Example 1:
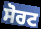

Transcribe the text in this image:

ਸੋਰਟ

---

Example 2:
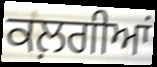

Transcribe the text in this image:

ਕਲ਼ਗੀਆਂ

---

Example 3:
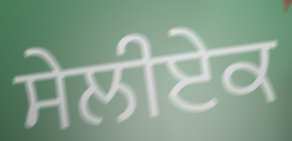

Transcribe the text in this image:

ਸੇਲੀਏਕ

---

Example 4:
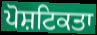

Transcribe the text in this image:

ਪੋਸ਼ਟਿਕਤਾ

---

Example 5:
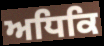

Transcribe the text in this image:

ਅਧਿਕਿ